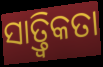
ସାତ୍ତ୍ଵିକତା